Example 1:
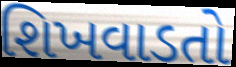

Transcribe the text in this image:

શિખવાડતો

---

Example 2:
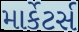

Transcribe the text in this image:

માર્કેટર્સ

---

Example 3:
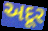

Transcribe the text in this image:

અદૂર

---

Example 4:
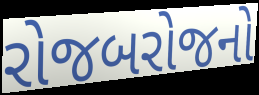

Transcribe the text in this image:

રોજબરોજનો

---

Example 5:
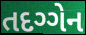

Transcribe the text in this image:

તદગ્ગેન